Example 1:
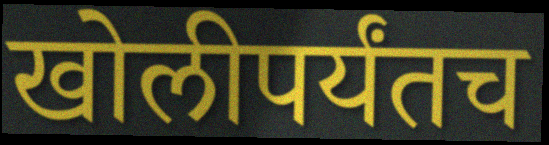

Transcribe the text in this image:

खोलीपर्यंतच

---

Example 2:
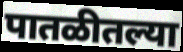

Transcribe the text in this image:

पातळीतल्या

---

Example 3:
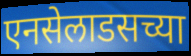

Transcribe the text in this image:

एनसेलाडसच्या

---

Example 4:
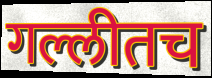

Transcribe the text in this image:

गल्लीतच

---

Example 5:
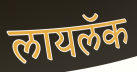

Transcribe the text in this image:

लायलॅक